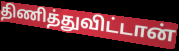
திணித்துவிட்டான்